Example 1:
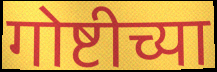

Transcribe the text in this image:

गोष्टीच्या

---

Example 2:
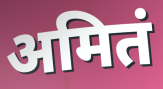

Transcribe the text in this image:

अमितं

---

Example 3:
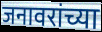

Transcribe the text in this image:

जनावरांच्या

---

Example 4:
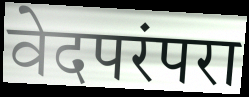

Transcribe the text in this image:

वेदपरंपरा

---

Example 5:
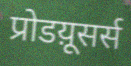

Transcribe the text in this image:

प्रोडय़ूसर्स